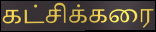
கட்சிக்கரை